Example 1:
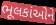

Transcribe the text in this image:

ભૂલકાંઓને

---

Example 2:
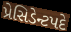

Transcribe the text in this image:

પ્રેસિડેન્ટપદે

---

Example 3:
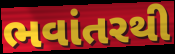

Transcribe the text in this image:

ભવાંતરથી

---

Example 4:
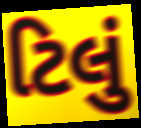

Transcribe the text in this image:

ટિલું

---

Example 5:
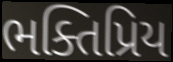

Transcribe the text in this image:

ભક્તિપ્રિય